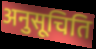
अनुसूचिति